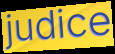
judice